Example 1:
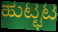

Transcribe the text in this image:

ಹುಟ್ಟಟ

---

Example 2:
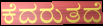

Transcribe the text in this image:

ಕೆದರುತದೆ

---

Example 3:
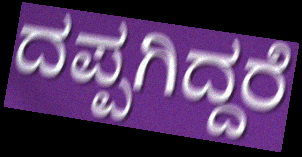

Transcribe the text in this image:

ದಪ್ಪಗಿದ್ದರೆ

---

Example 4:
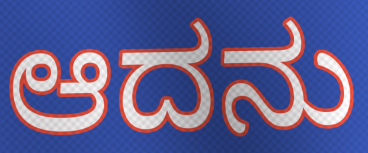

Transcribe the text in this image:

ಆದನು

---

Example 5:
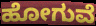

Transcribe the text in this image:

ಹೋಗುವೆ